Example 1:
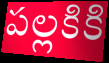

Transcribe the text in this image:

పల్లకికి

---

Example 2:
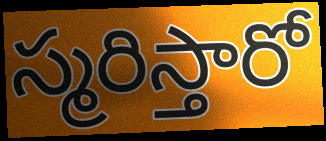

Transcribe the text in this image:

స్మరిస్తారో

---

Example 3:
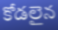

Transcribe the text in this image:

కోడలైన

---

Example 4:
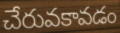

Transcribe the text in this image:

చేరువకావడం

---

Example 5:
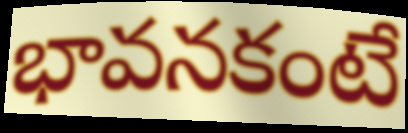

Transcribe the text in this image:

భావనకంటే